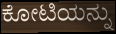
ಕೋಟಿಯನ್ನು